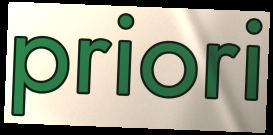
priori